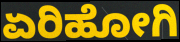
ಏರಿಹೋಗಿ